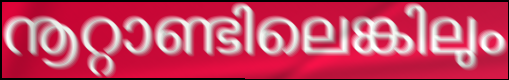
നൂറ്റാണ്ടിലെങ്കിലും